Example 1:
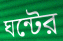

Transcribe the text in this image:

ঘন্টের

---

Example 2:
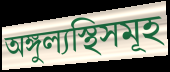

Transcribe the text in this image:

অঙ্গুল্যস্থিসমূহ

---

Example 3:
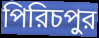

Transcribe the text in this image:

পিরিচপুর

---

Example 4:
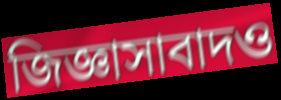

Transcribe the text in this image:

জিজ্ঞাসাবাদও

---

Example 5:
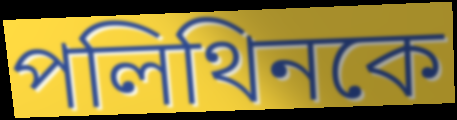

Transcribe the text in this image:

পলিথিনকে